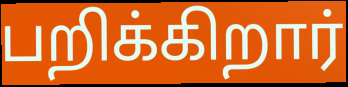
பறிக்கிறார்